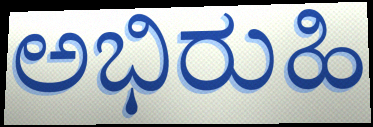
ಅಭಿರುಹಿ